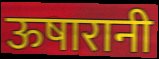
ऊषारानी